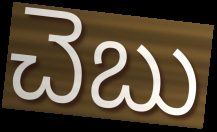
చెబు